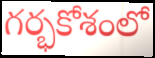
గర్భకోశంలో